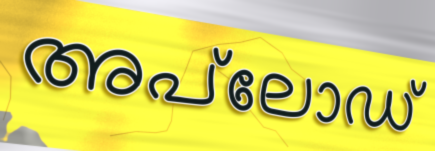
അപ്‌ലോഡ്